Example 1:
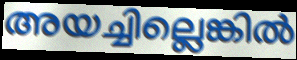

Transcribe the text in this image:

അയച്ചില്ലെങ്കിൽ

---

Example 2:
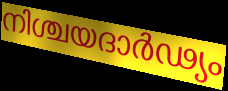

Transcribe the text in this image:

നിശ്ചയദാർഢ്യം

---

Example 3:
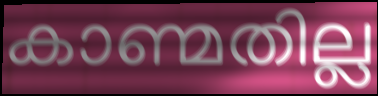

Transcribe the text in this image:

കാണ്മതില്ല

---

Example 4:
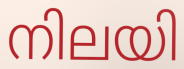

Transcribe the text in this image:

നിലയി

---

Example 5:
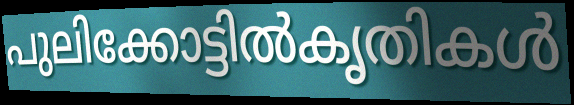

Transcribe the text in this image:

പുലിക്കോട്ടിൽകൃതികൾ